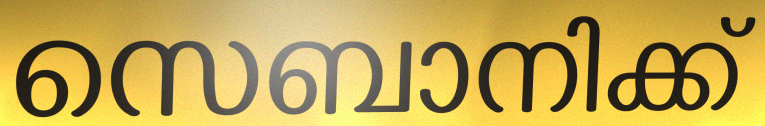
സെബാനിക്ക്